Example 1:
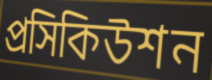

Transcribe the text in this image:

প্রসিকিউশন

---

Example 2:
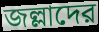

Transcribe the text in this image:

জল্লাদের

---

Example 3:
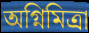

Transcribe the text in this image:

অগ্নিমিত্রা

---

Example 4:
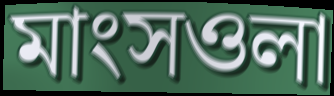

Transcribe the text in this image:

মাংসওলা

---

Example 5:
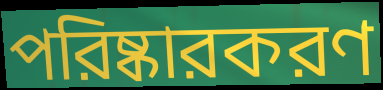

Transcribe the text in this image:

পরিষ্কারকরণ